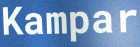
Kampar